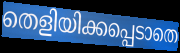
തെളിയിക്കപ്പെടാതെ